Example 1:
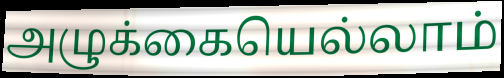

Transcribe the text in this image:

அழுக்கையெல்லாம்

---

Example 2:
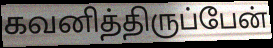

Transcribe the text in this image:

கவனித்திருப்பேன்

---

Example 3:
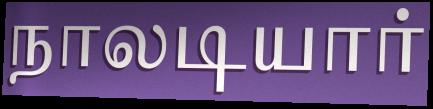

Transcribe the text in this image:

நாலடியார்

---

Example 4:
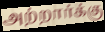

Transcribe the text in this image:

அற்றார்க்கு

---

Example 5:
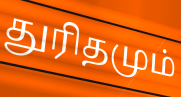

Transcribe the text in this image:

துரிதமும்